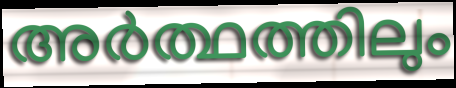
അർത്ഥത്തിലും